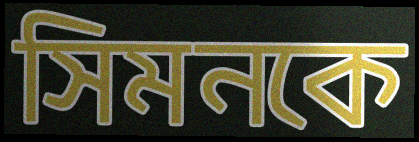
সিমনকে